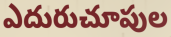
ఎదురుచూపుల